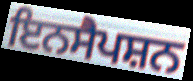
ਇਨਸੈਪਸ਼ਨ